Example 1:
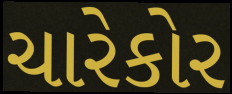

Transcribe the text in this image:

ચારેકોર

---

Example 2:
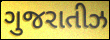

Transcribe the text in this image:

ગુજરાતીઝ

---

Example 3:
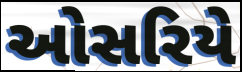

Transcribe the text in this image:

ઓસરિયે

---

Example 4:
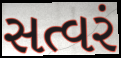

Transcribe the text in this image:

સત્વરં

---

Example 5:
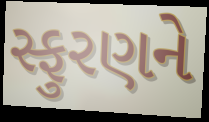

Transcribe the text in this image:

સ્ફુરણને